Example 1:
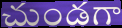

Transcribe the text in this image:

చుండగా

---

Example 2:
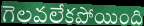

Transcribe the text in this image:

గెలవలేకపోయింది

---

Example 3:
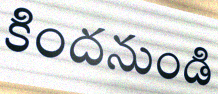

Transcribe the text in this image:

కిందనుండి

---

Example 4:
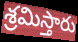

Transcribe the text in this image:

శ్రమిస్తారు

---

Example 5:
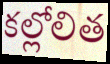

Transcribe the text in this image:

కల్లోలిత